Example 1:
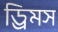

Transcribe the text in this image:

ড্রিমস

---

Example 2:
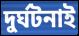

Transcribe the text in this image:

দুর্ঘটনাই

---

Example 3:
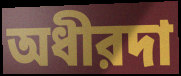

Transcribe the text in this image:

অধীরদা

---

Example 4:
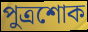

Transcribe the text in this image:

পুত্রশোক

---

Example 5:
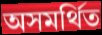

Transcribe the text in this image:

অসমর্থিত